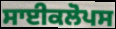
ਸਾਈਕਲੋਪਸ